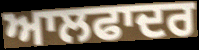
ਆਲਫਾਦਰ